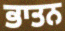
ਭਾਤਨ